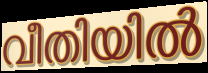
വീതിയിൽ